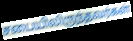
சபையிலிருந்தவர்கள்